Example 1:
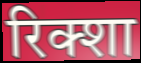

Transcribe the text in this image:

रिक्‍शा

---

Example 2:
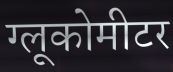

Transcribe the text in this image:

ग्लूकोमीटर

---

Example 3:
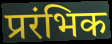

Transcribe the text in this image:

प्ररंभिक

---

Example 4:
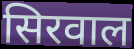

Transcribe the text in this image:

सिरवाल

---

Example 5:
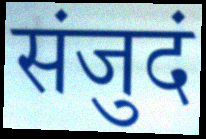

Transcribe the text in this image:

संजुदं